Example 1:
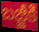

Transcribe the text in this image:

బజ్జీకి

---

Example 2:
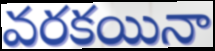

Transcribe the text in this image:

వరకయినా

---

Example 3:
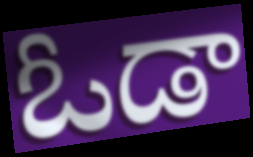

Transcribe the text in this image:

ఓడా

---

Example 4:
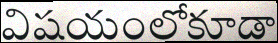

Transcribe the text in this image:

విషయంలోకూడా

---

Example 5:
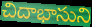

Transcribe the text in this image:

చిదాభాసుని